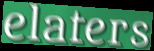
elaters